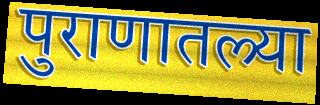
पुराणातल्या